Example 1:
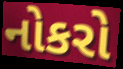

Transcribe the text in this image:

નોકરો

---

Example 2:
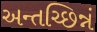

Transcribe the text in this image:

અન્તચ્છિન્નં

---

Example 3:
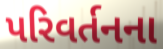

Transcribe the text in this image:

પરિવર્તનના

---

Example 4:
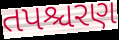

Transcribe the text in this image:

તપશ્ચરણ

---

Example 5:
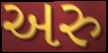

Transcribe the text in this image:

અરુ